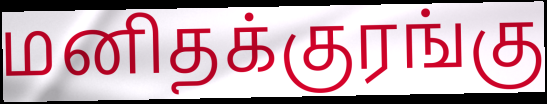
மனிதக்குரங்கு